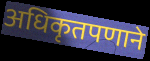
अधिकृतपणाने